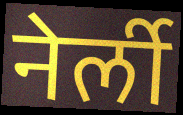
नेर्ली